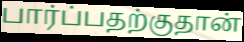
பார்ப்பதற்குதான்